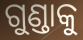
ଗୁଣ୍ଡାକୁ